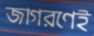
জাগরণেই